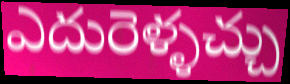
ఎదురెళ్ళచ్చు